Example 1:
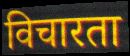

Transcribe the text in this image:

विचारता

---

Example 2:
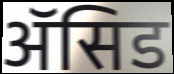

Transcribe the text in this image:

ॲसिड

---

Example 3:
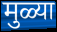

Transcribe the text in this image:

मुळ्या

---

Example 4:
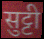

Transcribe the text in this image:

सुट्टी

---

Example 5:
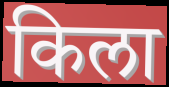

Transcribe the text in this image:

किला